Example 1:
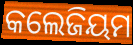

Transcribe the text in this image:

କଲେଜିୟମ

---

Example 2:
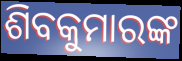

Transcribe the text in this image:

ଶିବକୁମାରଙ୍କ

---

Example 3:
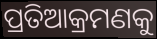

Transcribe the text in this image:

ପ୍ରତିଆକ୍ରମଣକୁ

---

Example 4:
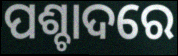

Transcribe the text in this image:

ପଶ୍ଚାଦରେ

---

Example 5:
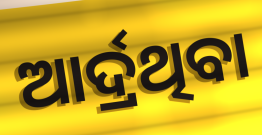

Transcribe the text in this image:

ଆର୍ଦ୍ରଥିବା